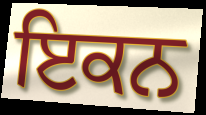
ਇਕਨ